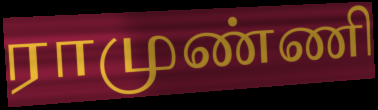
ராமுண்ணி